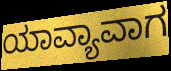
ಯಾವ್ಯಾವಾಗ